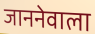
जाननेवाला